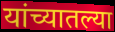
यांच्यातल्या